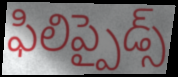
ఫిలిప్పైడ్స్